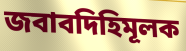
জবাবদিহিমূলক